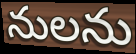
నులను